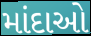
માંદાઓ